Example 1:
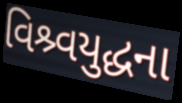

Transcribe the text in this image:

વિશ્ર્વયુદ્ધના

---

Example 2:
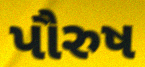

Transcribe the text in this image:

પૌરુષ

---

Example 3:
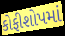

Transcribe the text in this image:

કોફીશોપમાં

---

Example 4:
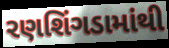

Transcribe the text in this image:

રણશિંગડામાંથી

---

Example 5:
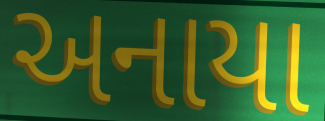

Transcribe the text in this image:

અનાયા